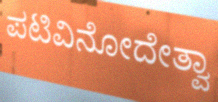
ಪಟಿವಿನೋದೇತ್ವಾ